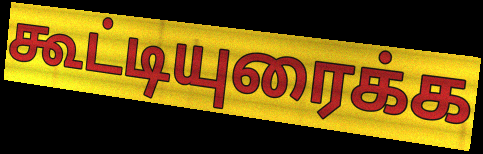
கூட்டியுரைக்க